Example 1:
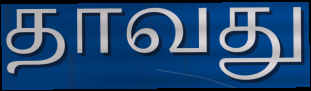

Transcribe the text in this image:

தாவது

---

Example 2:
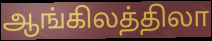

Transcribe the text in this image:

ஆங்கிலத்திலா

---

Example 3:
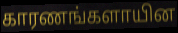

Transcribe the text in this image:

காரணங்களாயின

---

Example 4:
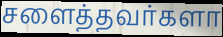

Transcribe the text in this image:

சளைத்தவர்களா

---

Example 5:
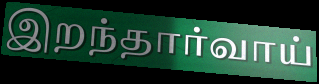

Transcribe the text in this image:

இறந்தார்வாய்